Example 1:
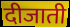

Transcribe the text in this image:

दीजाती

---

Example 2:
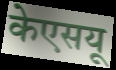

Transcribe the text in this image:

केएसयू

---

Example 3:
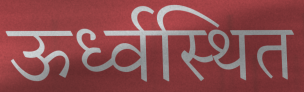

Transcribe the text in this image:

ऊर्ध्वस्थित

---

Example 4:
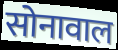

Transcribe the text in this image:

सोनावाल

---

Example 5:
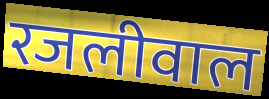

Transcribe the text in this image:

रजलीवाल